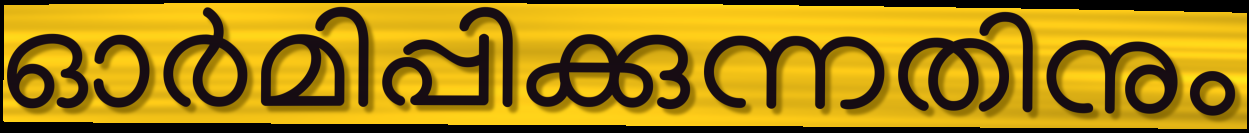
ഓർമിപ്പിക്കുന്നതിനും